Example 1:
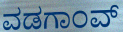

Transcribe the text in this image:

ವಡಗಾಂವ್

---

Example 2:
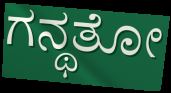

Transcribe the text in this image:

ಗನ್ಥತೋ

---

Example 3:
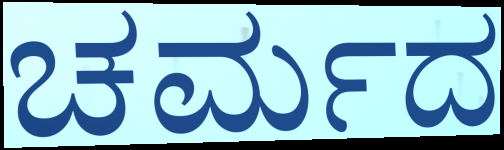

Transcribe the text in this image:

ಚರ್ಮದ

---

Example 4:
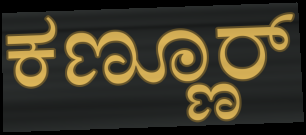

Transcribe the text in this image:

ಕಣ್ಣೂರ್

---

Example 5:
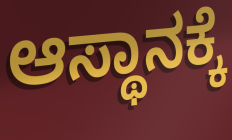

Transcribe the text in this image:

ಆಸ್ಥಾನಕ್ಕೆ